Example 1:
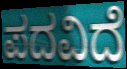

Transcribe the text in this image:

ಪದವಿದೆ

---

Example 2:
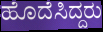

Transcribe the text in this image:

ಹೊದೆಸಿದ್ದರು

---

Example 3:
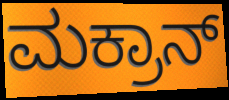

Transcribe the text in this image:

ಮಕ್ರಾನ್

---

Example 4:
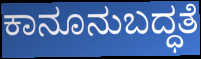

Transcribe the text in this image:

ಕಾನೂನುಬದ್ಧತೆ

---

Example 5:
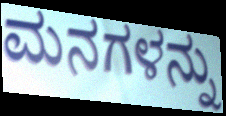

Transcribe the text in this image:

ಮನಗಳನ್ನು